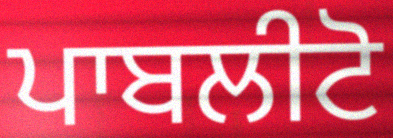
ਪਾਬਲੀਟੋ